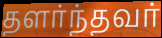
தளர்ந்தவர்